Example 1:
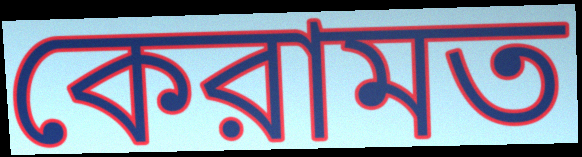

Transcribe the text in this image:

কেরামত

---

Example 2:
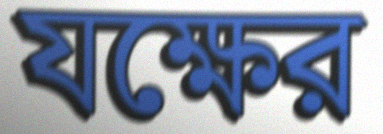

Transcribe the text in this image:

যক্ষের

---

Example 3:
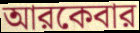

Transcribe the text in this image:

আরকেবার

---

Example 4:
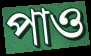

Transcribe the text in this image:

পাও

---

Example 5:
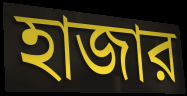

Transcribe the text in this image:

হাজার